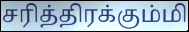
சரித்திரக்கும்மி